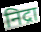
निद्रा